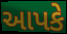
આપકે